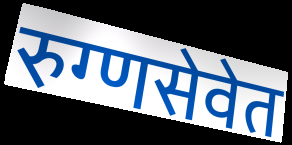
रुग्णसेवेत